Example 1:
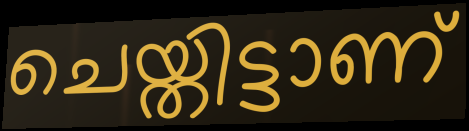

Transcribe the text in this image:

ചെയ്തിട്ടാണ്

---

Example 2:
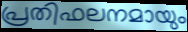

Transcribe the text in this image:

പ്രതിഫലനമായും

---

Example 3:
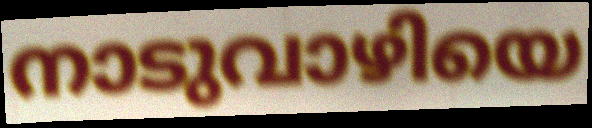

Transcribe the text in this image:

നാടുവാഴിയെ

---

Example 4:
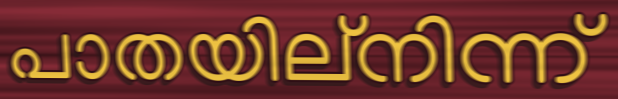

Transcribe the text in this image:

പാതയില്നിന്ന്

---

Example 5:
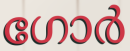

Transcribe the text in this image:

ഗോർ